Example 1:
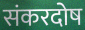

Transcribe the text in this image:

संकरदोष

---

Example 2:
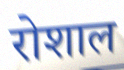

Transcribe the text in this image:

रोशाल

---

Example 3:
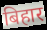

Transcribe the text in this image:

बिहार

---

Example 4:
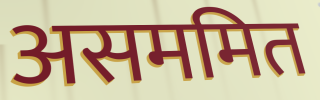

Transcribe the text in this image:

असममित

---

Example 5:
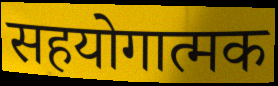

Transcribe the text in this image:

सहयोगात्मक